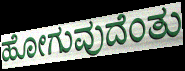
ಹೋಗುವುದೆಂತು